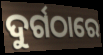
ଦୁର୍ଗଠାରେ